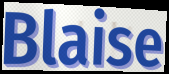
Blaise